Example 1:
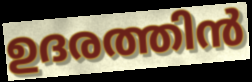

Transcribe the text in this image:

ഉദരത്തിൻ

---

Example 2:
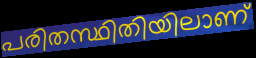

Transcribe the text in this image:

പരിതസ്ഥിതിയിലാണ്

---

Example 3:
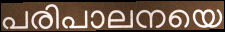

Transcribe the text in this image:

പരിപാലനയെ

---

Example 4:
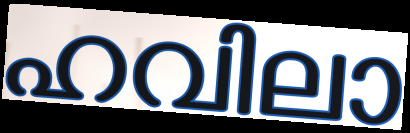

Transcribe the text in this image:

ഹവിലാ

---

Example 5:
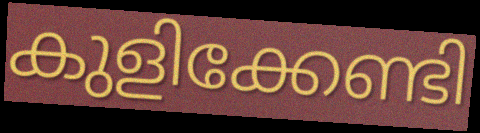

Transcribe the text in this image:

കുളിക്കേണ്ടി